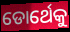
ଡୋର୍ଥେକୁ